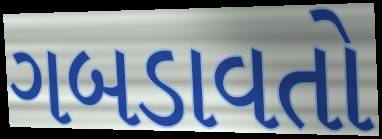
ગબડાવતો